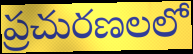
ప్రచురణలలో